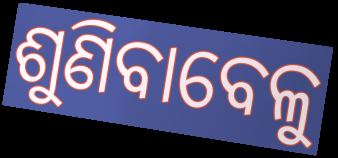
ଶୁଣିବାବେଳୁ